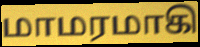
மாமரமாகி